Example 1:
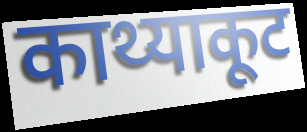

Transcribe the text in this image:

काथ्याकूट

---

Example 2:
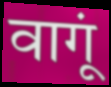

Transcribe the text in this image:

वागूं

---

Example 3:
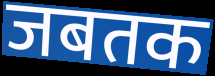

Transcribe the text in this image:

जबतक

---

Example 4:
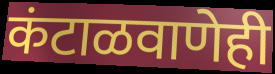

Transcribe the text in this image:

कंटाळवाणेही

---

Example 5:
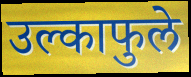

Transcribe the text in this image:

उल्काफुले